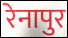
रेनापुर